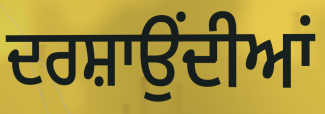
ਦਰਸ਼ਾਉਂਦੀਆਂ